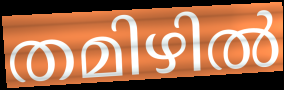
തമിഴിൽ